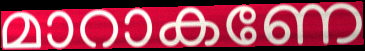
മാറാകണേ